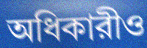
অধিকারীও